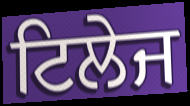
ਟਿਲੇਜ